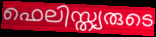
ഫെലിസ്ത്യരുടെ